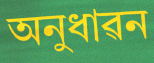
অনুধাৱন